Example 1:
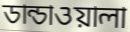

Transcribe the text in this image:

ডান্ডাওয়ালা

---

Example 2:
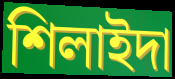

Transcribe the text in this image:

শিলাইদা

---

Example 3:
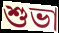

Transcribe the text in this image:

শুভা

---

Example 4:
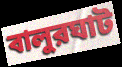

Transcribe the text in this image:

বালুরঘাট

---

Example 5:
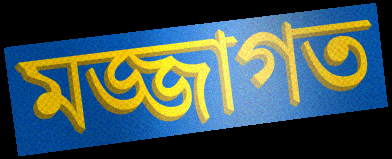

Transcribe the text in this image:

মজ্জাগত